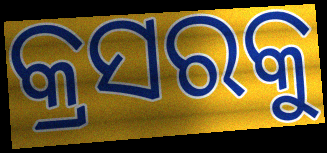
କ୍ରସରକୁ